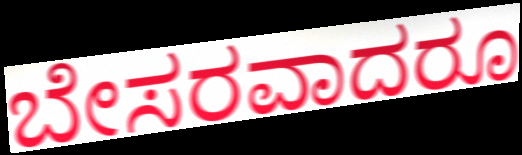
ಬೇಸರವಾದರೂ